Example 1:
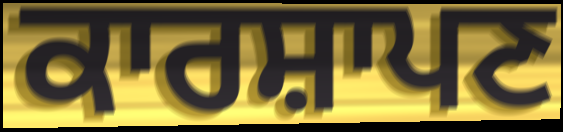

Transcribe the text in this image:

ਕਾਰਸ਼ਾਪਣ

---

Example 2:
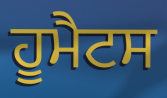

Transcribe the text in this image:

ਹੂਮੈਟਸ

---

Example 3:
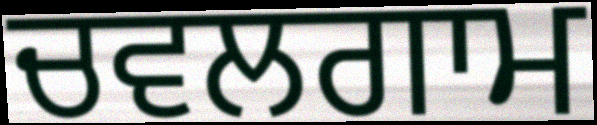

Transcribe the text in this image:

ਚਵਲਗਾਮ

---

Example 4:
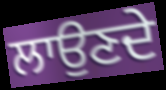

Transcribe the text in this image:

ਲਾਉਣਦੇ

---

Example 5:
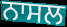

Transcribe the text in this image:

ਨਾਸਲ